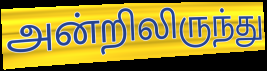
அன்றிலிருந்து